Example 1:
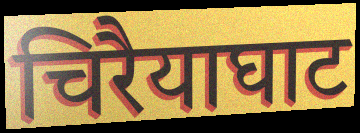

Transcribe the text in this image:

चिरैयाघाट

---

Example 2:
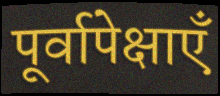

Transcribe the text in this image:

पूर्वापेक्षाएँ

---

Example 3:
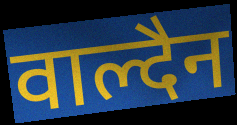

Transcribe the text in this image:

वाल्दैन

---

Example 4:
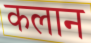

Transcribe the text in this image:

कलान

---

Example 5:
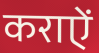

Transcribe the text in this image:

कराऐं